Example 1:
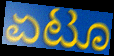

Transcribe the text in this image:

ಏಟೂ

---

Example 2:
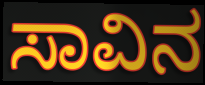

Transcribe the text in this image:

ಸಾವಿನ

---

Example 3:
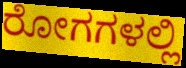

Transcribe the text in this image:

ರೋಗಗಳಲ್ಲಿ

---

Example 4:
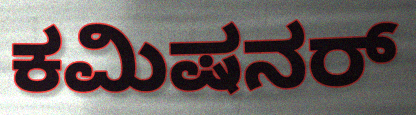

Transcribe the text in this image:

ಕಮಿಷನರ್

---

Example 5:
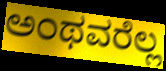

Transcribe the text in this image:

ಅಂಥವರೆಲ್ಲ